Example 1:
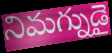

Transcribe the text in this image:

నిమగ్నుడై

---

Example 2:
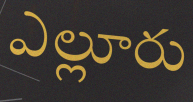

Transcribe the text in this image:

ఎల్లూరు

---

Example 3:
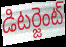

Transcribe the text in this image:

డిటర్జెంట్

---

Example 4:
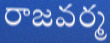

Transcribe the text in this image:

రాజవర్మ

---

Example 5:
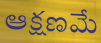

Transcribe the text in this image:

ఆక్షణమే